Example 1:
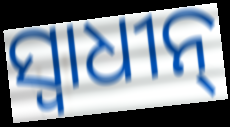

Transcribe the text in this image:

ସ୍ଵାଧୀନ୍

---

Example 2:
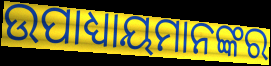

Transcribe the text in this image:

ଉପାଧ୍ୟାୟମାନଙ୍କର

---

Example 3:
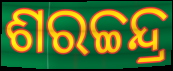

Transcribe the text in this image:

ଶରଚ୍ଚନ୍ଦ୍ର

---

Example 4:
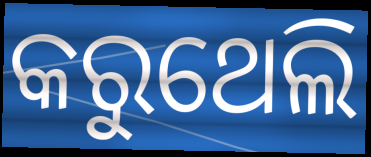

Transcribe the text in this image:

କରୁଥେଲି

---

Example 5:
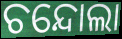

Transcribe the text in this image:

ଚନ୍ଦୋଲା